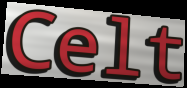
Celt